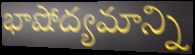
భాషోద్యమాన్ని